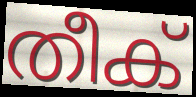
തീക്